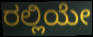
ರಲ್ಲಿಯೇ